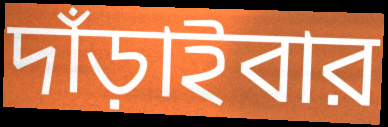
দাঁড়াইবার